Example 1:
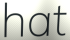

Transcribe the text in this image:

hat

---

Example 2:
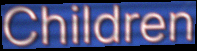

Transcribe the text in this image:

Children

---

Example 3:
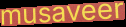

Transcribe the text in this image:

musaveer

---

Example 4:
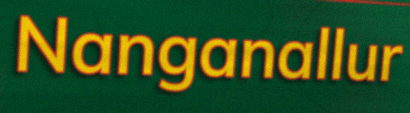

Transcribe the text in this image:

Nanganallur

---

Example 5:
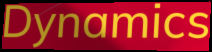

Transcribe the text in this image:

Dynamics